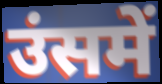
उंसमें